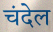
चंदेल